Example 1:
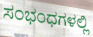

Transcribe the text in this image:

ಸಂಭಂಧಗಳಲ್ಲಿ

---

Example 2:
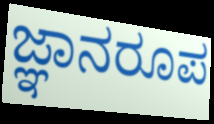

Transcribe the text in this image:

ಜ್ಞಾನರೂಪ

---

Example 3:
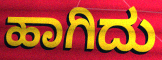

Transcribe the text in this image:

ಹಾಗಿದು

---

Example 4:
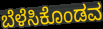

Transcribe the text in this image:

ಬೆಳೆಸಿಕೊಂಡವ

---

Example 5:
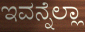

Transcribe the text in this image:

ಇವನ್ನೆಲ್ಲಾ